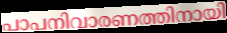
പാപനിവാരണത്തിനായി